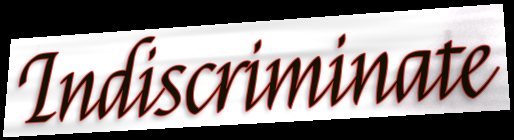
Indiscriminate